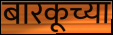
बारकूच्या